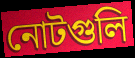
নোটগুলি